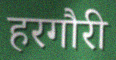
हरगौरी